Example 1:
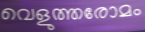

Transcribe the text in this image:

വെളുത്തരോമം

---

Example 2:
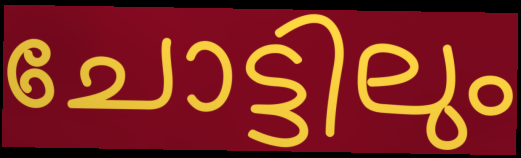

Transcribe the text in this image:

ചോട്ടിലും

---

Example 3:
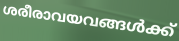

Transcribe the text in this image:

ശരീരാവയവങ്ങൾക്ക്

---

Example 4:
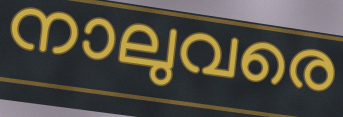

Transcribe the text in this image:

നാലുവരെ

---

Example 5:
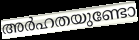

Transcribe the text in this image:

അർഹതയുണ്ടോ